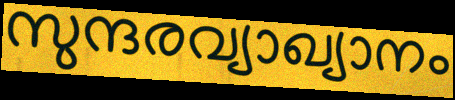
സുന്ദരവ്യാഖ്യാനം